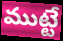
ముట్టే